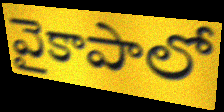
వైకాపాలో